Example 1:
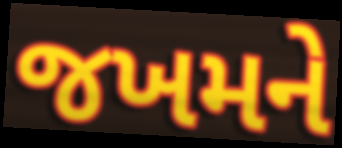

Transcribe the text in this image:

જખમને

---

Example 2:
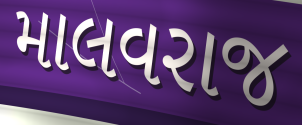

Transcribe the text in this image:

માલવરાજ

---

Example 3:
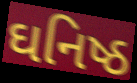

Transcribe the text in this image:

ઘનિષ્ઠ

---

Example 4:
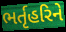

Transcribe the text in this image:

ભર્તૃહરિને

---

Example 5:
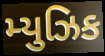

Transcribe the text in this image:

મ્યુઝિક